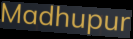
Madhupur